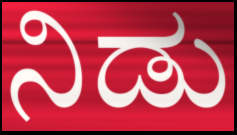
ನಿಡು